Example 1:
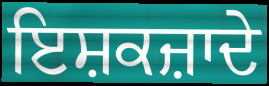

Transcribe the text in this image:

ਇਸ਼ਕਜ਼ਾਦੇ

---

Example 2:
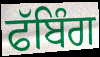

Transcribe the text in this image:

ਫੱਬਿੰਗ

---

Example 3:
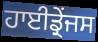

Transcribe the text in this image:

ਹਾਈਡ੍ਰੇਂਜਸ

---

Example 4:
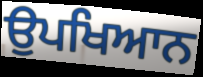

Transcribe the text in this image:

ਉਪਖਿਆਨ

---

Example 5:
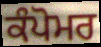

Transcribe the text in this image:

ਕੰਪੋਮਰ